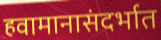
हवामानासंदर्भात